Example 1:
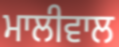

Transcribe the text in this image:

ਮਾਲੀਵਾਲ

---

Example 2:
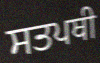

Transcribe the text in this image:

ਸਤਪਥੀ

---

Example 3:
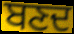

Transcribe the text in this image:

ਬਣਦ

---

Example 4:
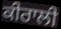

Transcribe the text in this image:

ਕੀਰਾਲੀ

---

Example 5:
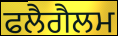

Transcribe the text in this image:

ਫਲੈਗੈਲਮ